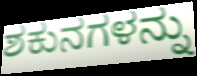
ಶಕುನಗಳನ್ನು